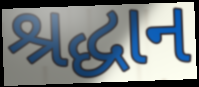
શ્રદ્ધાન